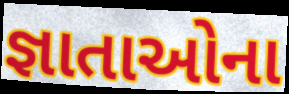
જ્ઞાતાઓના